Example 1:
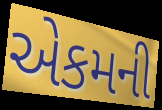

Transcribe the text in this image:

એકમની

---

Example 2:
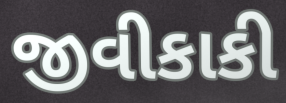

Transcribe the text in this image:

જીવીકાકી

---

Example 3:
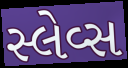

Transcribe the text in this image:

સ્લેવ્સ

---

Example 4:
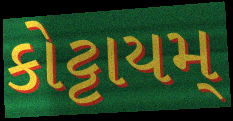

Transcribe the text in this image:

કોટ્ટાયમ્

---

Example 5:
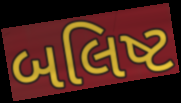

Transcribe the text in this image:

બલિષ્ટ